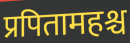
प्रपितामहश्च